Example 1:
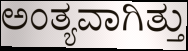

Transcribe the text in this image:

ಅಂತ್ಯವಾಗಿತ್ತು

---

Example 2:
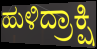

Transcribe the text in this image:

ಹುಳಿದ್ರಾಕ್ಷಿ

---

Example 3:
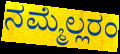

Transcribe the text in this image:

ನಮ್ಮೆಲ್ಲರಂ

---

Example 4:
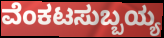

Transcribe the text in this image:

ವೆಂಕಟಸುಬ್ಬಯ್ಯ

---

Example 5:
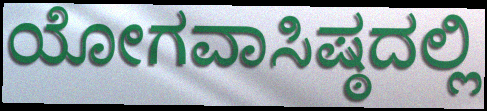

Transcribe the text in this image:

ಯೋಗವಾಸಿಷ್ಠದಲ್ಲಿ